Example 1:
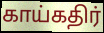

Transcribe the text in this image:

காய்கதிர்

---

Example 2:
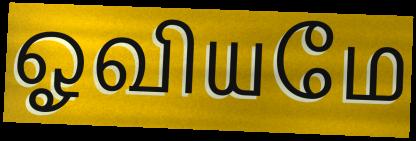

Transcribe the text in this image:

ஓவியமே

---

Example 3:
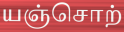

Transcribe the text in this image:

யஞ்சொற்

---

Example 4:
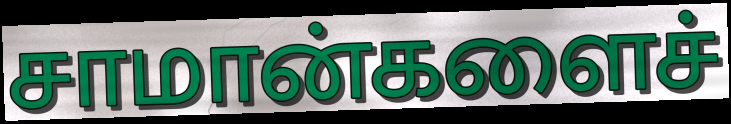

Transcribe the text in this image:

சாமான்களைச்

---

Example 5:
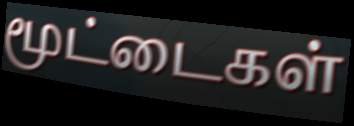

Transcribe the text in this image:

மூட்டைகள்